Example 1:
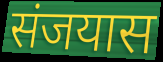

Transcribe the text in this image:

संजयास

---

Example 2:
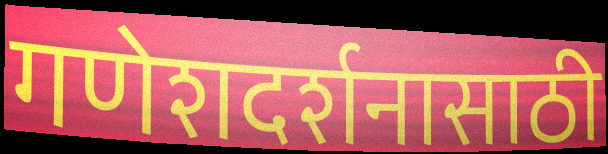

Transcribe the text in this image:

गणेशदर्शनासाठी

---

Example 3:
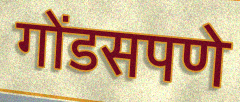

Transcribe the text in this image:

गोंडसपणे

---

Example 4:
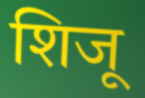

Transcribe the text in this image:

शिजू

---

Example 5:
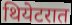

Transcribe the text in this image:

थियेटरात